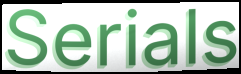
Serials